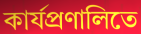
কার্যপ্রণালিতে